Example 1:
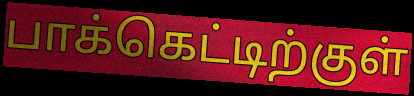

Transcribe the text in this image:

பாக்கெட்டிற்குள்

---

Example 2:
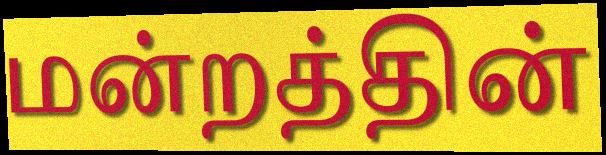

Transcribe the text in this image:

மன்றத்தின்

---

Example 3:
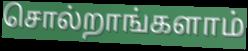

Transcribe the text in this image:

சொல்றாங்களாம்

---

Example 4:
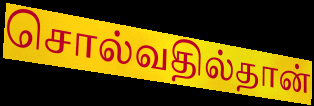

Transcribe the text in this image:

சொல்வதில்தான்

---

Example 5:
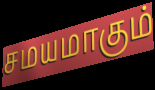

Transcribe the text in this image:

சமயமாகும்